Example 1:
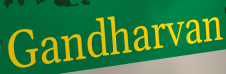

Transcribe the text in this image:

Gandharvan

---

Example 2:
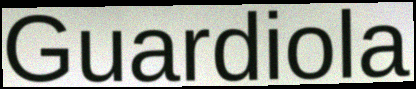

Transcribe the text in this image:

Guardiola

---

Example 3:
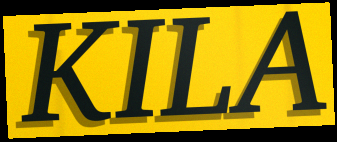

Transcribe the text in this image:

KILA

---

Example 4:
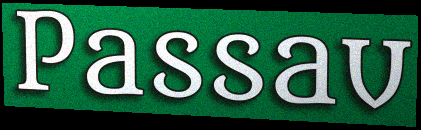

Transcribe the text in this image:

Passau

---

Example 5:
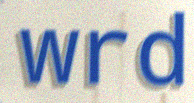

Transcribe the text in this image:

wrd